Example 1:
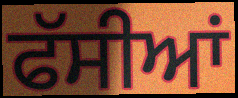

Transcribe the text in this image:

ਫੱਸੀਆਂ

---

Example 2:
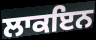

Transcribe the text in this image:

ਲਾਕਇਨ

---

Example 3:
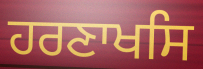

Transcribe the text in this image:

ਹਰਣਾਖਸਿ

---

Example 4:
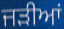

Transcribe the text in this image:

ਜੜੀਆਂ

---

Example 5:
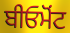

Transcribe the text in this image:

ਬੀਓਮੋਂਟ